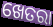
ଖେତରା